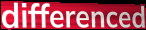
differenced